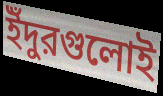
ইঁদুরগুলোই